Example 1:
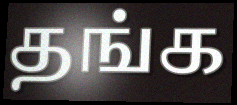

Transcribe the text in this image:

தங்க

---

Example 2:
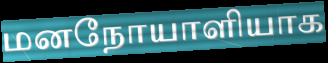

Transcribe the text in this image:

மனநோயாளியாக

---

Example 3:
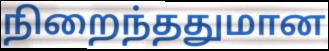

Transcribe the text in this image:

நிறைந்ததுமான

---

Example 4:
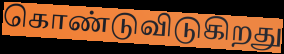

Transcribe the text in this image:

கொண்டுவிடுகிறது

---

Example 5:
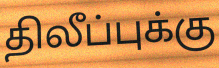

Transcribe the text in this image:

திலீப்புக்கு